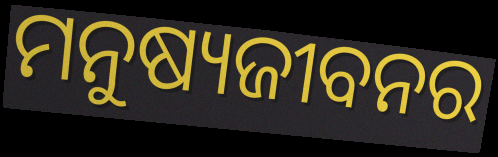
ମନୁଷ୍ୟଜୀବନର